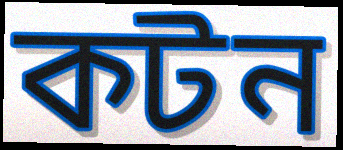
কটন